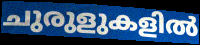
ചുരുളുകളിൽ